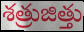
శత్రుజిత్తు